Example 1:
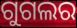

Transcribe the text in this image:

ଗୁଗଲର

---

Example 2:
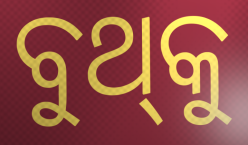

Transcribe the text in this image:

ବୁଥ୍‌କୁ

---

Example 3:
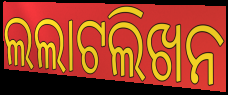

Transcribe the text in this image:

ଲଲାଟଲିଖନ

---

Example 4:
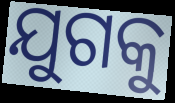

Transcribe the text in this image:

ଯୁଗକୁ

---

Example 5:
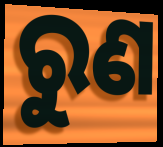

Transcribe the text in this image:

ରୁଣ